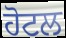
ਹੋਟਲ